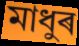
মাধুৰ